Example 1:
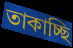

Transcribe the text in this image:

তাকাচ্ছি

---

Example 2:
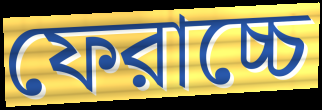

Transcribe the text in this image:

ফেরাচ্চে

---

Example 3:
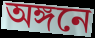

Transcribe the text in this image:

অঙ্গনে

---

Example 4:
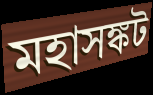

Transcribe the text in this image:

মহাসঙ্কট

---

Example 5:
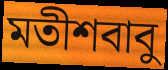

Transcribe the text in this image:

মতীশবাবু